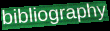
bibliography